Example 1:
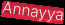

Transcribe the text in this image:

Annayya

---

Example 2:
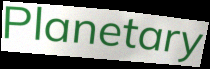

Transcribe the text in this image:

Planetary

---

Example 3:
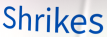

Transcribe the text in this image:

Shrikes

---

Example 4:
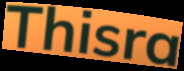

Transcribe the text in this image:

Thisra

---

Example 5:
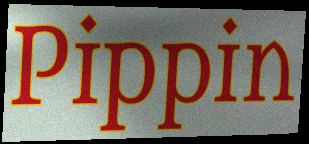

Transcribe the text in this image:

Pippin